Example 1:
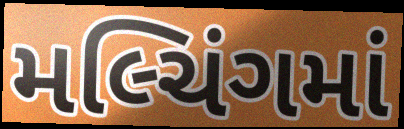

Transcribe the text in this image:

મલ્ચિંગમાં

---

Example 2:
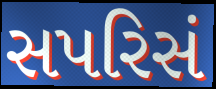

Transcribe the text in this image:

સપરિસં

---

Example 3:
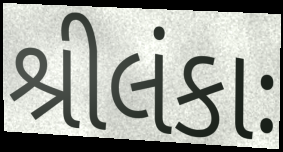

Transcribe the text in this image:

શ્રીલંકાઃ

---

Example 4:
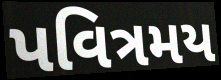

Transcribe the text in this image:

પવિત્રમય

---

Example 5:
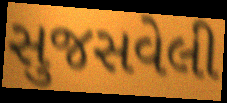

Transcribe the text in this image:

સુજસવેલી